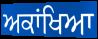
ਅਕਾਂਖਿਆ